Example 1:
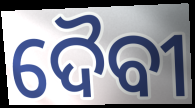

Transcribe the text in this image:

ଦୈବୀ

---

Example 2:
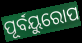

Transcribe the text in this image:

ପୂର୍ବୟୁରୋପ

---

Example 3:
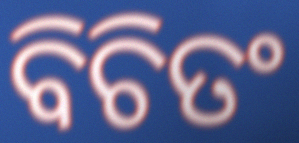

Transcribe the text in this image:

ବିଚିତଂ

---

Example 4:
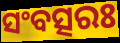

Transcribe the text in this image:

ସଂବତ୍ସରଃ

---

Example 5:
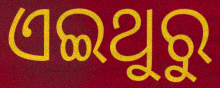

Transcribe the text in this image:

ଏଇଥୁରୁ